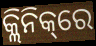
କ୍ଲିନିକ୍‌ରେ